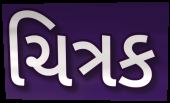
ચિત્રક